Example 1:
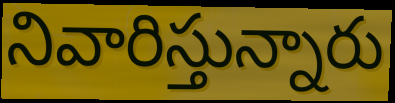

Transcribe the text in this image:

నివారిస్తున్నారు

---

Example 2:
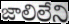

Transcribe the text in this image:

జాలిలేని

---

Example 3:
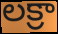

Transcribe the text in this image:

లక్రా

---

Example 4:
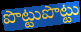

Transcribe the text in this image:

పొట్టుపొట్టు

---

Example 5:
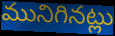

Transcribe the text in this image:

మునిగినట్లు